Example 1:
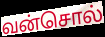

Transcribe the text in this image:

வன்சொல்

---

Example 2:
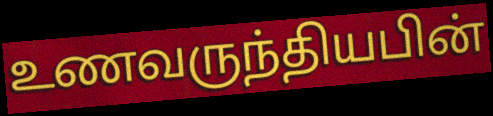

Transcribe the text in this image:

உணவருந்தியபின்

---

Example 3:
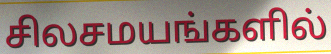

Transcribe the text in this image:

சிலசமயங்களில்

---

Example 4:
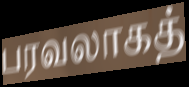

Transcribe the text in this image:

பரவலாகத்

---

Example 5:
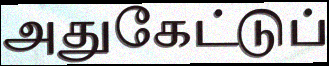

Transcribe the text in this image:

அதுகேட்டுப்